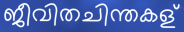
ജീവിതചിന്തകള്